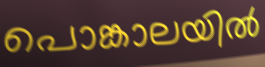
പൊങ്കാലയിൽ